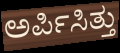
ಅರ್ಪಿಸಿತ್ತು